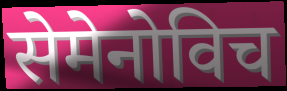
सेमेनोविच